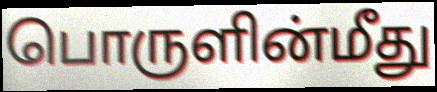
பொருளின்மீது